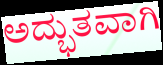
ಅದ್ಭುತವಾಗಿ